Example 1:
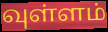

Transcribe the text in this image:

வுள்ளம்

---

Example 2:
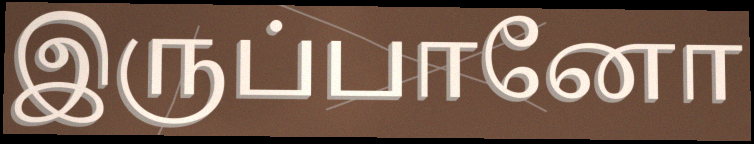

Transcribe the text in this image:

இருப்பானோ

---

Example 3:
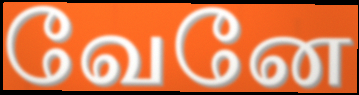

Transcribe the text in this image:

வேனே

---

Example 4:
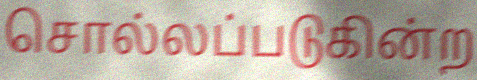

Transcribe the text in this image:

சொல்லப்படுகின்ற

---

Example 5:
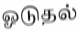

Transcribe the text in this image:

ஓடுதல்